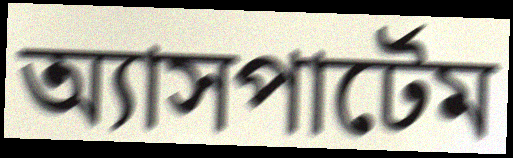
অ্যাসপার্টেম